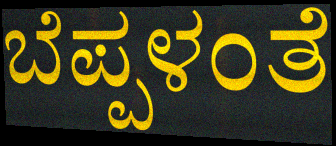
ಬೆಪ್ಪಳಂತೆ